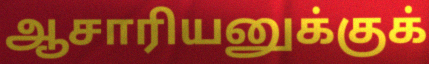
ஆசாரியனுக்குக்